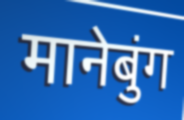
मानेबुंग